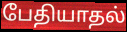
பேதியாதல்